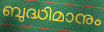
ബുദ്ധിമാനും